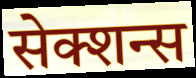
सेक्शन्स